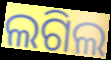
ଲଗିଲ